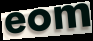
eom